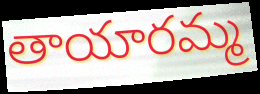
తాయారమ్మ